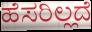
ಹೆಸರಿಲ್ಲದೆ